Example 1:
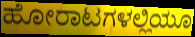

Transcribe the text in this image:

ಹೋರಾಟಗಳಲ್ಲಿಯೂ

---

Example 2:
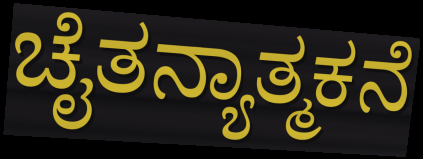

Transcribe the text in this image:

ಚೈತನ್ಯಾತ್ಮಕನೆ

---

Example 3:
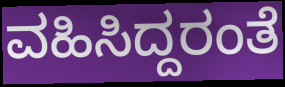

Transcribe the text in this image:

ವಹಿಸಿದ್ದರಂತೆ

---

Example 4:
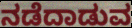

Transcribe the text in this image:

ನಡೆದಾಡುವ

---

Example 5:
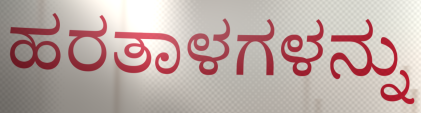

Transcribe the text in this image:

ಹರತಾಳಗಳನ್ನು